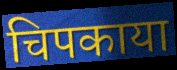
चिपकाया